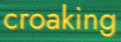
croaking